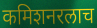
कमिशनरलाच